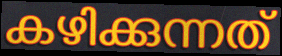
കഴിക്കുന്നത്